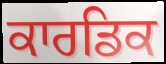
ਕਾਰਡਿਕ